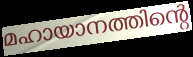
മഹായാനത്തിന്റെ